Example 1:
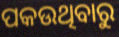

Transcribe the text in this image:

ପକଉଥିବାରୁ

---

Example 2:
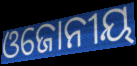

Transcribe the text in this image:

ଓଜୋନୀୟ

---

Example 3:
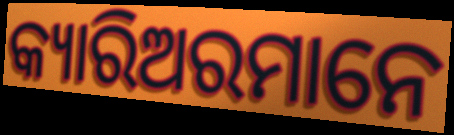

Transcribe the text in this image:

କ୍ୟାରିଅରମାନେ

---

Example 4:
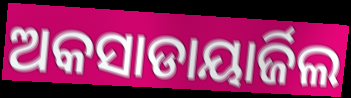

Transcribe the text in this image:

ଅକସାଡାୟାର୍ଜିଲ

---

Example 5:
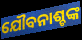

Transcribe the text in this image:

ଯୌବନାଶ୍ଚଙ୍କ